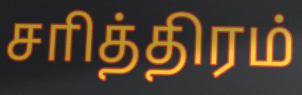
சரித்திரம்